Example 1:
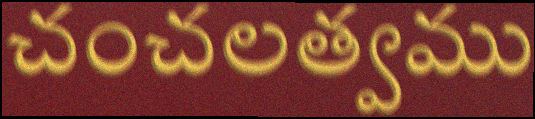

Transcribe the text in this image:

చంచలత్వము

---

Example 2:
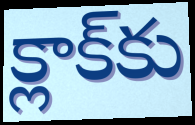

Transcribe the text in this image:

క్లాక్‌కు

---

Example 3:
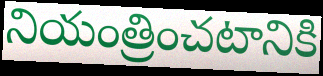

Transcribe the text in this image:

నియంత్రించటానికి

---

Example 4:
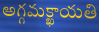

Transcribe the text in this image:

అగ్గమక్ఖాయతి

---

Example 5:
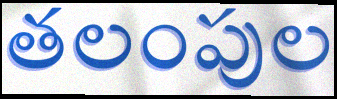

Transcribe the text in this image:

తలంపుల